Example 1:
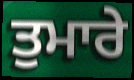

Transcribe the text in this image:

ਤੁਮਾਰੇ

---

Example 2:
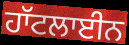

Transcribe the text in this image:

ਹਾੱਟਲਾਈਨ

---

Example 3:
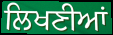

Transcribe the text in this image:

ਲਿਖਣੀਆਂ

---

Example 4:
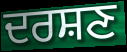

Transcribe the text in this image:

ਦਰਸ਼ਣ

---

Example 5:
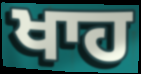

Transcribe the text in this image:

ਖਾਹ